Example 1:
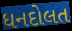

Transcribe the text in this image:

ધનદોલત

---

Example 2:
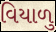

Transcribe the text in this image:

વિયાળુ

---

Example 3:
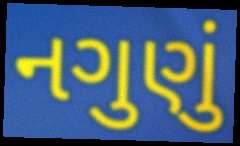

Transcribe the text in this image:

નગુણું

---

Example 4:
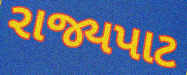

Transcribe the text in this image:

રાજ્યપાટ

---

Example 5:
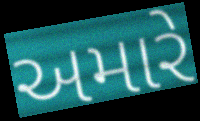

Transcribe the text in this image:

અમારે